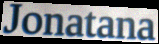
Jonatana